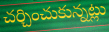
చర్చించుకున్నట్లు